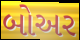
બોઅર